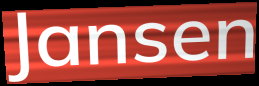
Jansen